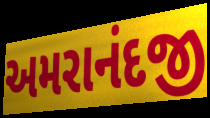
અમરાનંદજી